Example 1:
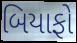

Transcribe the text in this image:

બિયાફો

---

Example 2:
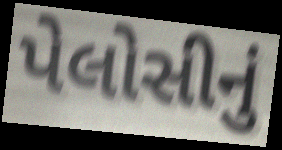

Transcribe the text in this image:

પેલોસીનું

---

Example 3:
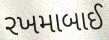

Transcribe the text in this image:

રખમાબાઈ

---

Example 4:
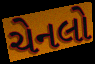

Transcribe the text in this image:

ચેનલો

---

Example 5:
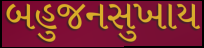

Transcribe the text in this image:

બહુજનસુખાય